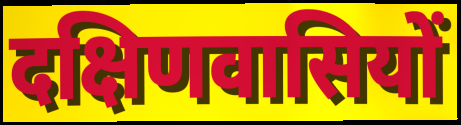
दक्षिणवासियों